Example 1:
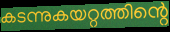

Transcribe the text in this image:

കടന്നുകയറ്റത്തിന്റെ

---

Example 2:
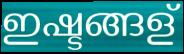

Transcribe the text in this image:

ഇഷ്ടങ്ങള്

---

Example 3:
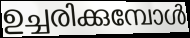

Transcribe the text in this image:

ഉച്ചരിക്കുമ്പോൾ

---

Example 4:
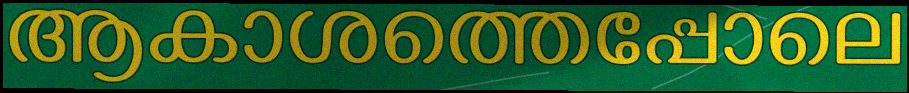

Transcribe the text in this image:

ആകാശത്തെപ്പോലെ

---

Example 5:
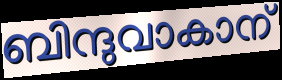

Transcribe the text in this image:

ബിന്ദുവാകാന്